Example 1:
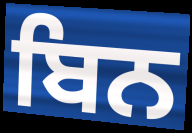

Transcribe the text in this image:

ਬਿਨ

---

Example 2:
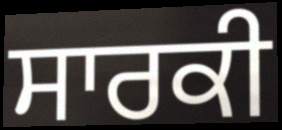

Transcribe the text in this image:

ਸਾਰਕੀ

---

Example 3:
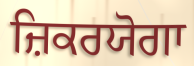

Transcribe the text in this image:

ਜ਼ਿਕਰਯੋਗਾ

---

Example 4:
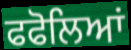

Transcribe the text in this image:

ਫਫੋਲਿਆਂ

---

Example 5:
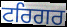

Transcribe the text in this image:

ਟਰਿਗਰ